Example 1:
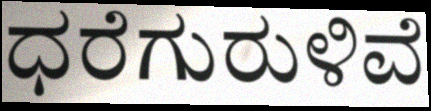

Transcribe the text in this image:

ಧರೆಗುರುಳಿವೆ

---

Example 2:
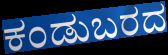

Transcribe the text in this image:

ಕಂಡುಬರದ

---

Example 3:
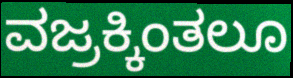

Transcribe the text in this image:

ವಜ್ರಕ್ಕಿಂತಲೂ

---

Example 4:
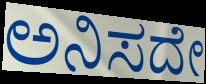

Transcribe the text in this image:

ಅನಿಸದೇ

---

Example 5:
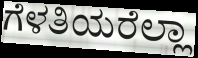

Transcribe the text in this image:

ಗೆಳತಿಯರೆಲ್ಲಾ